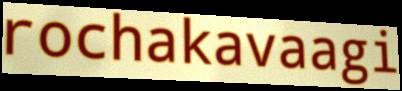
rochakavaagi